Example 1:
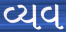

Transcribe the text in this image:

વ્યવ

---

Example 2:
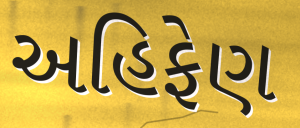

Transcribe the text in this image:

અહિફેણ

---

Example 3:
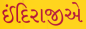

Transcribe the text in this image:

ઈંદિરાજીએ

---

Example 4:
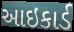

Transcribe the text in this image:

આઇકાર્ડ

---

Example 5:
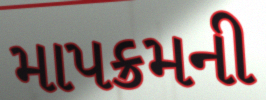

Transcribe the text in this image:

માપક્રમની